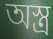
অস্ত্র